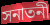
সনাতনী